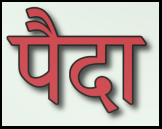
पैदा